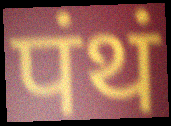
पंथं